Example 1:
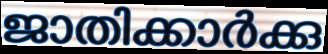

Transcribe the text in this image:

ജാതിക്കാർക്കു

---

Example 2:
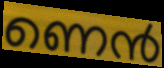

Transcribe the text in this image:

ണെൻ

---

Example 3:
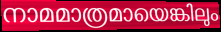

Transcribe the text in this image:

നാമമാത്രമായെങ്കിലും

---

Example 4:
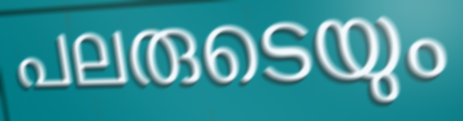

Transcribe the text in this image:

പലരുടെയും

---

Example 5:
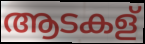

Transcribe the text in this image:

ആടകള്